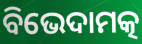
ବିଭେଦାମତ୍କ